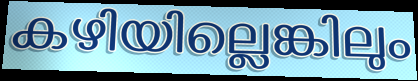
കഴിയില്ലെങ്കിലും